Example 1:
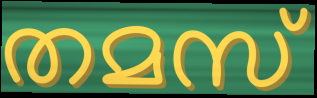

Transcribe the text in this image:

തമസ്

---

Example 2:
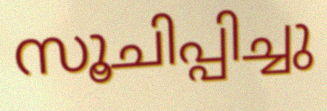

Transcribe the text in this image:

സൂചിപ്പിച്ചു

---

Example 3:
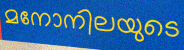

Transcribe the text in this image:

മനോനിലയുടെ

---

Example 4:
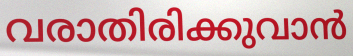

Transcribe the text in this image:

വരാതിരിക്കുവാൻ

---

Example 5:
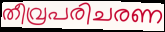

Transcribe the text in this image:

തീവ്രപരിചരണ